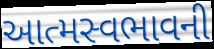
આત્મસ્વભાવની